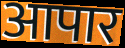
आपार